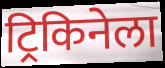
ट्रिकिनेला